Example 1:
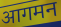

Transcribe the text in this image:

आगमन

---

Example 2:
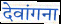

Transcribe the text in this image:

देवांगना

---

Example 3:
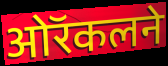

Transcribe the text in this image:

ओरॅकलने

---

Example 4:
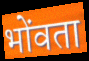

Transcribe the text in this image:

भोंवता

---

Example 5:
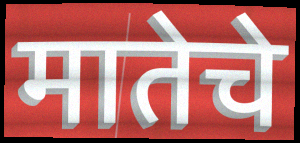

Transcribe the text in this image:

मातेचे